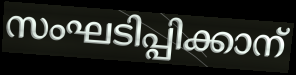
സംഘടിപ്പിക്കാന്